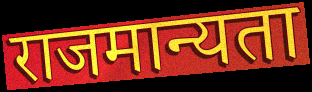
राजमान्यता